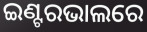
ଇଣ୍ଟରଭାଲରେ